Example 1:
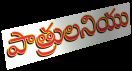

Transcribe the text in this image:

పాత్రులనియు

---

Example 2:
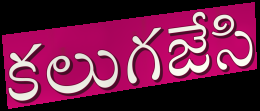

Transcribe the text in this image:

కలుగజేసి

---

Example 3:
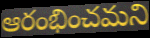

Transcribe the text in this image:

ఆరంభించమని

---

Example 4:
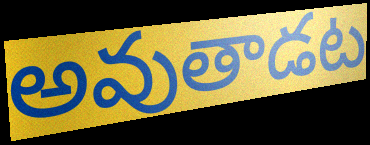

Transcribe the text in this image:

అవుతాడట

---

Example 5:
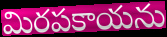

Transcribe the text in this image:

మిరపకాయను